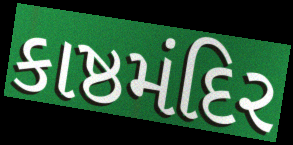
કાષ્ઠમંદિર